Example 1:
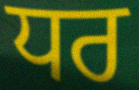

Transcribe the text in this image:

ਧਰ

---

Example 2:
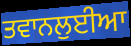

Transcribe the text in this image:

ਤਵਾਨਲੁਈਆ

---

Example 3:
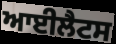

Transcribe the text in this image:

ਆਈਲੈਟਸ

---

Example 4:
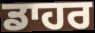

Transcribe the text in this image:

ਡਾਹਰ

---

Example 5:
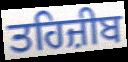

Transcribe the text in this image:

ਤਹਿਜ਼ੀਬ